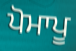
ਪੋਮਾਪੂ